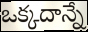
ఒక్కదాన్నే